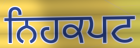
ਨਿਹਕਪਟ